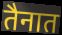
तैनात